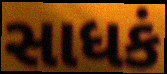
સાધકં